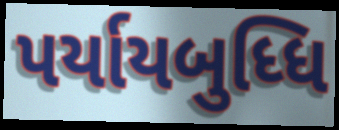
પર્યાયબુધ્ધિ